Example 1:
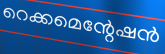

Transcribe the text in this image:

റെക്കമെന്റേഷൻ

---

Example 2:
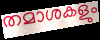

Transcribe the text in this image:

തമാശകളും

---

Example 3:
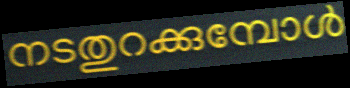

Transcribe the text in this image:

നടതുറക്കുമ്പോൾ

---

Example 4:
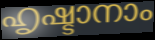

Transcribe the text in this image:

ഹൃഷ്ടാനാം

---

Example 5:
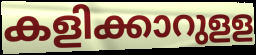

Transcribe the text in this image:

കളിക്കാറുളള